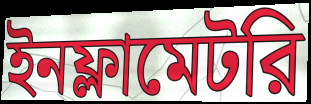
ইনফ্লামেটরি